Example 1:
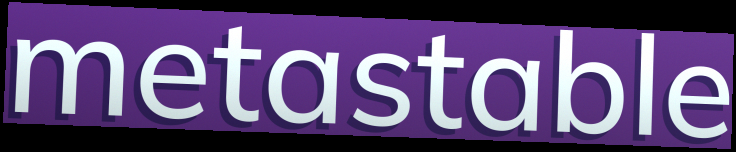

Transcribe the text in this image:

metastable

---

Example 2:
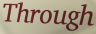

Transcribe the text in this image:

Through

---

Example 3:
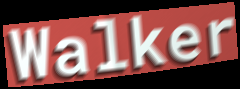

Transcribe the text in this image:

Walker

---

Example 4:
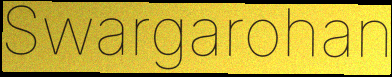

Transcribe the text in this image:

Swargarohan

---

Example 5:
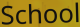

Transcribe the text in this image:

School